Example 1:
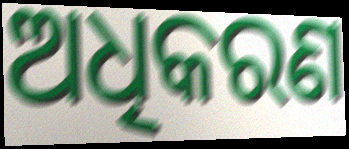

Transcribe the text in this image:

ଅଧିକରଣ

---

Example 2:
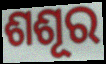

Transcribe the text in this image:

ଶଶୂର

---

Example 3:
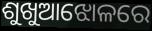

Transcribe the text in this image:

ଶୁଖୁଆଝୋଳରେ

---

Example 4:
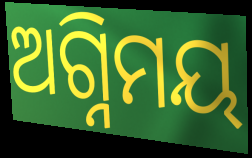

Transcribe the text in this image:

ଅଗ୍ନିମୟ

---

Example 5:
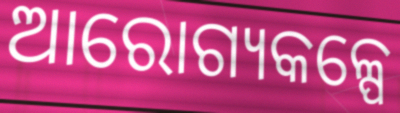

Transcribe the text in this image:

ଆରୋଗ୍ୟକଳ୍ପେ